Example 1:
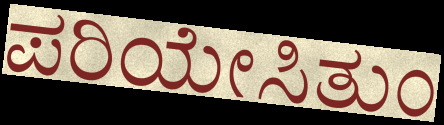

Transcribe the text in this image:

ಪರಿಯೇಸಿತುಂ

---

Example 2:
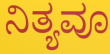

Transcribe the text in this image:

ನಿತ್ಯವೂ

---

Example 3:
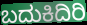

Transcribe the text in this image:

ಬದುಕಿದಿರಿ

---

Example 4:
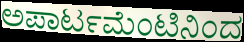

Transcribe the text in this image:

ಅಪಾರ್ಟಮೆಂಟಿನಿಂದ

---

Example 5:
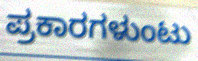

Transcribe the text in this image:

ಪ್ರಕಾರಗಳುಂಟು